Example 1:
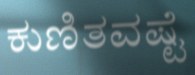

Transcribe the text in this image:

ಕುಣಿತವಷ್ಟೆ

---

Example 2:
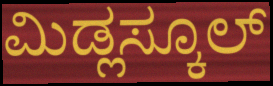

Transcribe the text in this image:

ಮಿಡ್ಲಸ್ಕೂಲ್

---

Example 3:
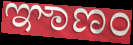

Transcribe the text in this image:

ಞಾಣಂ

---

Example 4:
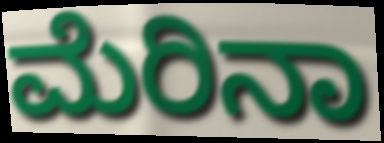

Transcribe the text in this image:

ಮೆರಿನಾ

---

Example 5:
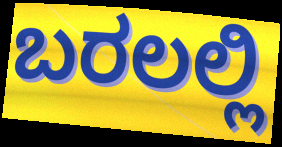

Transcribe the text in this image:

ಬರಲಲ್ಲಿ